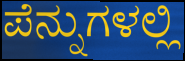
ಪೆನ್ನುಗಳಲ್ಲಿ